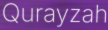
Qurayzah